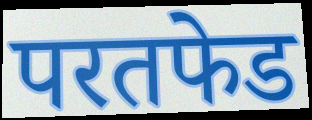
परतफेड